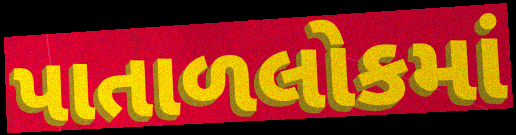
પાતાળલોકમાં